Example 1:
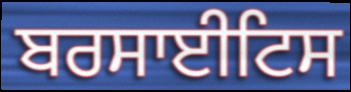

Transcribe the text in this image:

ਬਰਸਾਈਟਿਸ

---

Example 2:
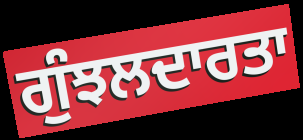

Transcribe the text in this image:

ਗੁੰਝਲਦਾਰਤਾ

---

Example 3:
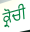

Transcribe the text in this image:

ਕ੍ਰੋਚੀ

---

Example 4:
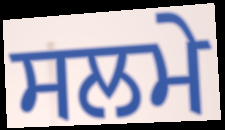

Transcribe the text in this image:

ਸਲਮੇ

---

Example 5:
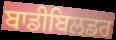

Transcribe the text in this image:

ਬਾਡੀਬਿਲਡਰ